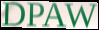
DPAW